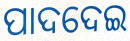
ପାଦଦେଇ